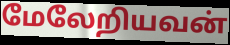
மேலேறியவன்